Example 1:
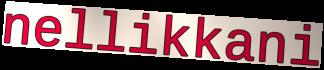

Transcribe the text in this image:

nellikkani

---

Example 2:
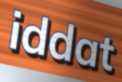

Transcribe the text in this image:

iddat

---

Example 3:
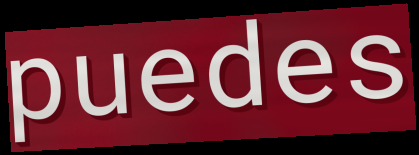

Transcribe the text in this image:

puedes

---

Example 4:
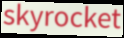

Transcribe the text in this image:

skyrocket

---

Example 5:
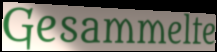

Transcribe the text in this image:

Gesammelte